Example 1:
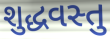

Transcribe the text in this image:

શુદ્ધવસ્તુ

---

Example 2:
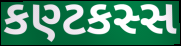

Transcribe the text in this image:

કણ્ટકસ્સ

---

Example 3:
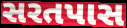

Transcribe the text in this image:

સરતપાસ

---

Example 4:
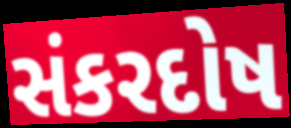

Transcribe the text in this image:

સંકરદોષ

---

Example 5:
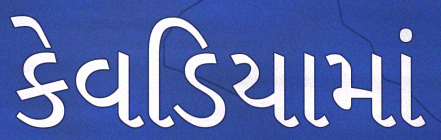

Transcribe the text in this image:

કેવડિયામાં